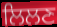
ਲਿਲਣ